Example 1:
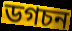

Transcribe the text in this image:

ডগচন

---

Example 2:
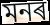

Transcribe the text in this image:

মনৰ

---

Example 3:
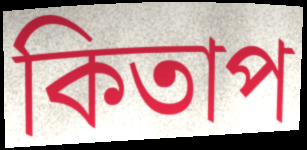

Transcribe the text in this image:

কিতাপ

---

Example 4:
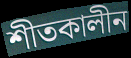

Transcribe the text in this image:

শীতকালীন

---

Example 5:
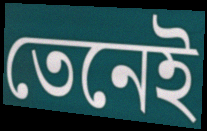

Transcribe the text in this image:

তেনেই